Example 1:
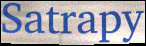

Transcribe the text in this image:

Satrapy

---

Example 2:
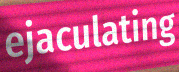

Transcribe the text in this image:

ejaculating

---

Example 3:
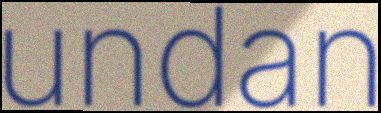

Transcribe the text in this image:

undan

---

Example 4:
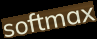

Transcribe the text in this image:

softmax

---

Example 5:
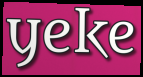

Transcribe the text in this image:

yeke